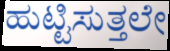
ಹುಟ್ಟಿಸುತ್ತಲೇ